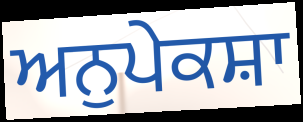
ਅਨੁਪੇਕਸ਼ਾ